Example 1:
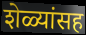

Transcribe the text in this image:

शेळ्यांसह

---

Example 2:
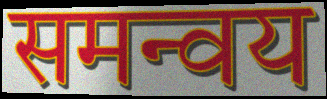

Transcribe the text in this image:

समन्वय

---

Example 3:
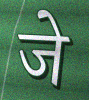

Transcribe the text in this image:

जे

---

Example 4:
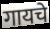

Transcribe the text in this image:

गायचे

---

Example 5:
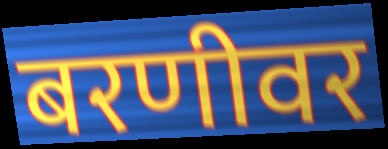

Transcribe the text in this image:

बरणीवर